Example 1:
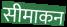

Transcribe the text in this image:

सीमाकन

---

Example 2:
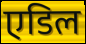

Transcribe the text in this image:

एडिल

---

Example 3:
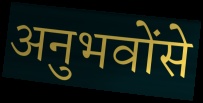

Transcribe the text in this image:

अनुभवोंसे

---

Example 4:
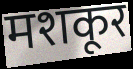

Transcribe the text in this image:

मशकूर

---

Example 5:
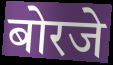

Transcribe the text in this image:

बोरजे